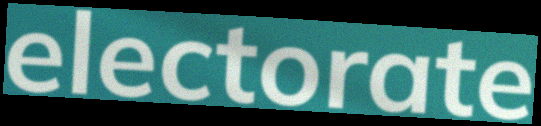
electorate